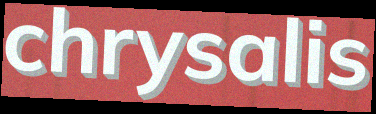
chrysalis